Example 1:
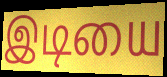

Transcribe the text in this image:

இடியை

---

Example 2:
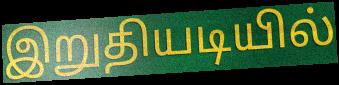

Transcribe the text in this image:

இறுதியடியில்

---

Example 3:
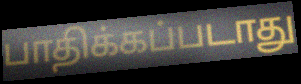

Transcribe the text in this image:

பாதிக்கப்படாது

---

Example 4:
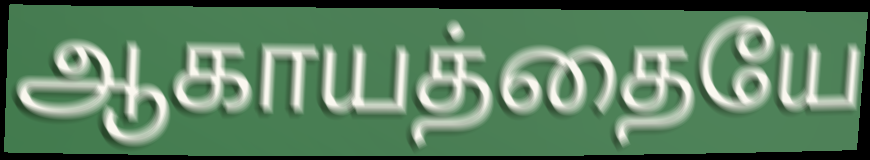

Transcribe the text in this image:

ஆகாயத்தையே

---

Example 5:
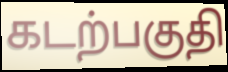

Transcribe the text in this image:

கடற்பகுதி